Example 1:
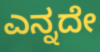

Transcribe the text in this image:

ಎನ್ನದೇ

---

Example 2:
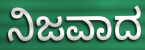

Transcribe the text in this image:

ನಿಜವಾದ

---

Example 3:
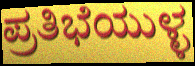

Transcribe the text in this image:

ಪ್ರತಿಭೆಯುಳ್ಳ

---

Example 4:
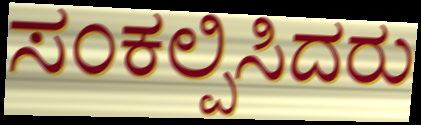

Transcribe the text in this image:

ಸಂಕಲ್ಪಿಸಿದರು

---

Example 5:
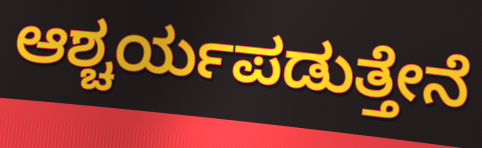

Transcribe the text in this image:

ಆಶ್ಚರ್ಯಪಡುತ್ತೇನೆ